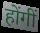
होंगीं